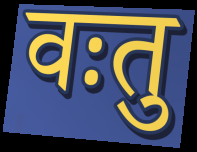
वःतु